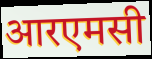
आरएमसी